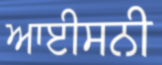
ਆਈਸਨੀ